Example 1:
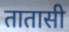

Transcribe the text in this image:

तातासी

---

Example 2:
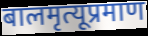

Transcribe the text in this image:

बालमृत्यूप्रमाण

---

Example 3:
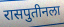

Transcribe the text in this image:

रासपुतीनला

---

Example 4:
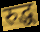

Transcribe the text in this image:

रुद्ध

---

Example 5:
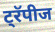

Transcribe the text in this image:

ट्रॅपीज